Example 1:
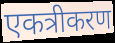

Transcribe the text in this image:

एकत्रीकरण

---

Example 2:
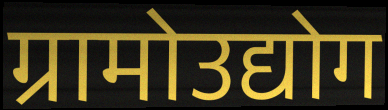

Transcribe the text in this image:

ग्रामोउद्योग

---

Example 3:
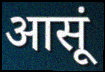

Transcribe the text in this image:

आसूं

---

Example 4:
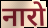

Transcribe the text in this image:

नारो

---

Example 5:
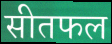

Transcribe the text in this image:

सीतफल